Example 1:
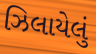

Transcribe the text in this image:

ઝિલાયેલું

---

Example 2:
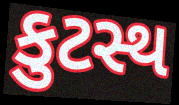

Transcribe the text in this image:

કુટસ્થ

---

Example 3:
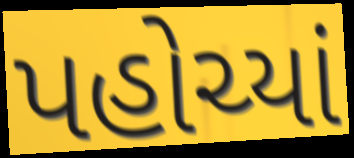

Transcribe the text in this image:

પહોચ્યાં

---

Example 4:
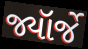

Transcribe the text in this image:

જ્યૉર્જે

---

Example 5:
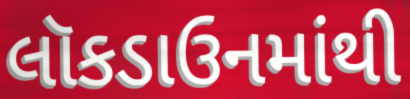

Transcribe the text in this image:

લૉકડાઉનમાંથી